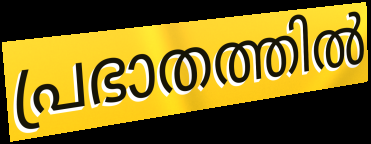
പ്രഭാതത്തിൽ